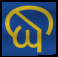
ଦ୍ଧ